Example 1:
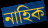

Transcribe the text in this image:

নাহিক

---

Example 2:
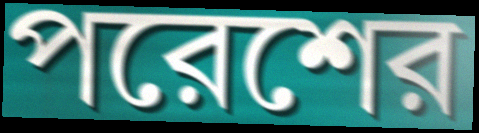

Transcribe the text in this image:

পরেশের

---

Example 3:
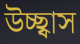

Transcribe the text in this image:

উচ্ছ্বাস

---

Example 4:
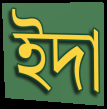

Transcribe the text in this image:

ইদা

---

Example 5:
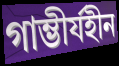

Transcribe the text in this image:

গাম্ভীর্যহীন